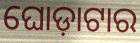
ଘୋଡ଼ାଟାର